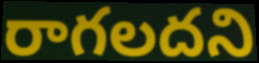
రాగలదని